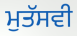
ਮੁਤੱਸਵੀ